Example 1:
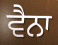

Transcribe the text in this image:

ਵੈਨਾ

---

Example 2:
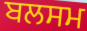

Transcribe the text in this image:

ਬਲਸਮ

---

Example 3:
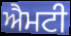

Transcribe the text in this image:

ਐਮਟੀ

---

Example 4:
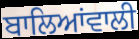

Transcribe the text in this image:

ਬਾਲਿਆਂਵਾਲੀ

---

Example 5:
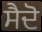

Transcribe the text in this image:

ਸੈਦੋ